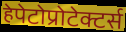
हेपेटोप्रोटेक्टर्स